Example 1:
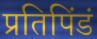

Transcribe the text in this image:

प्रतिपिंडं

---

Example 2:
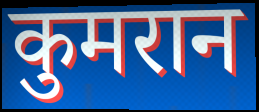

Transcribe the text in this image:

कुमरान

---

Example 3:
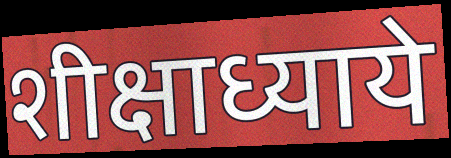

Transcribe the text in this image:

शीक्षाध्याये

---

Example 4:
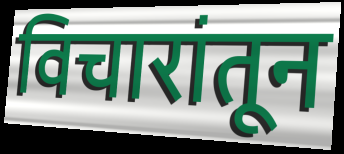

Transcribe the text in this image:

विचारांतून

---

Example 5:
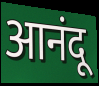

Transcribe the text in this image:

आनंदू